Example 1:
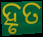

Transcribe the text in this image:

ହୃତ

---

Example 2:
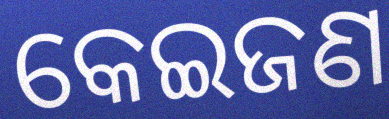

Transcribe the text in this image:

କେଇଜଣ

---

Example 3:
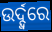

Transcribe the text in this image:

ଉର୍ଦ୍ଦ୍ୱରେ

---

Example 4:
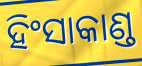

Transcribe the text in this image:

ହିଂସାକାଣ୍ଡ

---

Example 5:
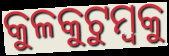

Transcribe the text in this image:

କୁଳକୁଟୁମ୍ବକୁ